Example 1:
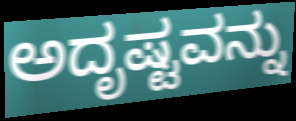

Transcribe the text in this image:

ಅದೃಷ್ಟವನ್ನು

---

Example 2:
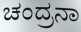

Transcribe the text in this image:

ಚಂದ್ರನಾ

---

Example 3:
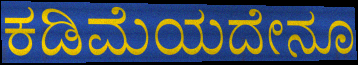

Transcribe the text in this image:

ಕಡಿಮೆಯದೇನೂ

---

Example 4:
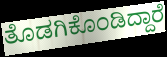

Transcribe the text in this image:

ತೊಡಗಿಕೊಂಡಿದ್ದಾರೆ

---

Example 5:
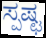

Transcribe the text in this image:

ಸ್ಪಷ್ಟ